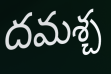
దమశ్చ